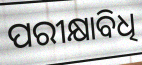
ପରୀକ୍ଷାବିଧି